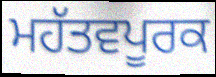
ਮਹੱਤਵਪੂਰਕ